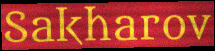
Sakharov